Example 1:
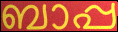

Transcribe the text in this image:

ബാപ്പ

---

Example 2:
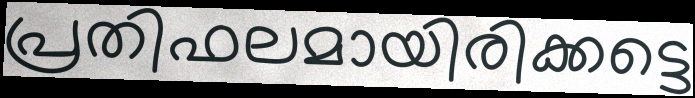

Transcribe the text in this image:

പ്രതിഫലമായിരിക്കട്ടെ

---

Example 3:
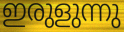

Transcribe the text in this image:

ഇരുളുന്നു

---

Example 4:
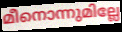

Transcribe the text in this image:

മീനൊന്നുമില്ലേ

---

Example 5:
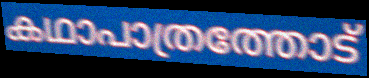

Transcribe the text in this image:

കഥാപാത്രത്തോട്